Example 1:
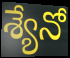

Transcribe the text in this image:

శ్యేనో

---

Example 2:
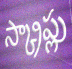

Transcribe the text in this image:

స్క్రాప్లు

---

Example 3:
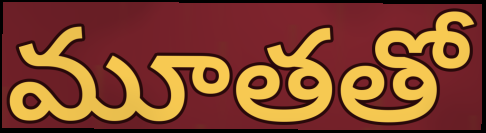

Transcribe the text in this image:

మూతతో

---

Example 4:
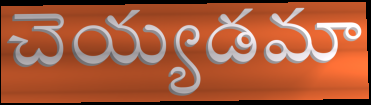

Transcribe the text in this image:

చెయ్యడమా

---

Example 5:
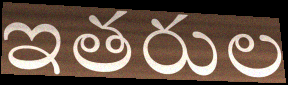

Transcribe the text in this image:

ఇతరుల